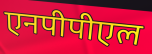
एनपीपीएल